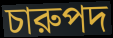
চারুপদ